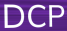
DCP